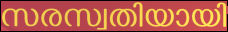
സരസ്വതിയായി